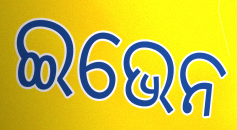
ଇଭେନ